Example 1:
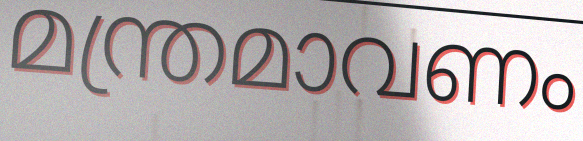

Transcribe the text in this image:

മന്ത്രമാവണം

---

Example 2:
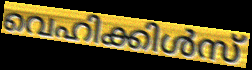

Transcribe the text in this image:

വെഹിക്കിൾസ്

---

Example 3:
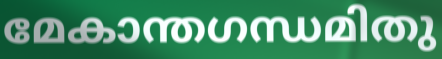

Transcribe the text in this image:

മേകാന്തഗന്ധമിതു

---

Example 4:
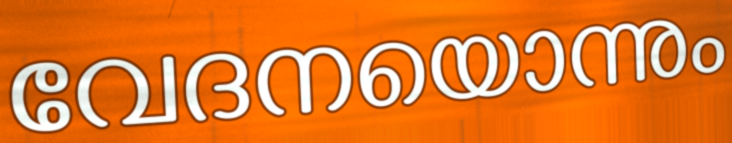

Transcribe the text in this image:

വേദനയൊന്നും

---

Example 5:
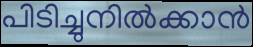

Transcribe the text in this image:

പിടിച്ചുനിൽക്കാൻ